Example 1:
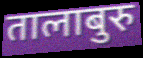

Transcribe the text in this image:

तालाबुरु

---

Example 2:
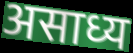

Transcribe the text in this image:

असाध्य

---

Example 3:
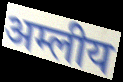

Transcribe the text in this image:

अम्लीय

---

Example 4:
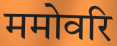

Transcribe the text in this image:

ममोवरि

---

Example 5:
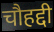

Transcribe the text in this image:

चौहद्दी